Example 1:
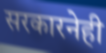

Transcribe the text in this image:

सरकारनेही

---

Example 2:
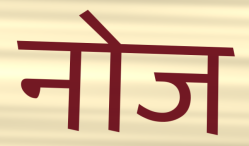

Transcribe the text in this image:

नोज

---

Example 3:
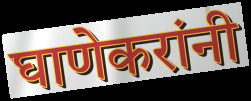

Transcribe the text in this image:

घाणेकरांनी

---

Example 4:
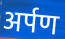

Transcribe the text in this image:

अर्पण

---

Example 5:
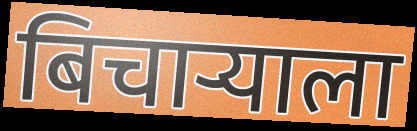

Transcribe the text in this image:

बिचार्‍याला